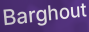
Barghout